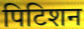
पिटिशन